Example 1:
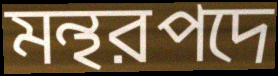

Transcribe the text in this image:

মন্থরপদে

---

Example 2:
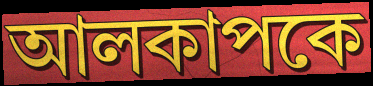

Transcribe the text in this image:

আলকাপকে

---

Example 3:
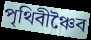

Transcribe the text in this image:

পৃথিবীঞ্চৈব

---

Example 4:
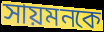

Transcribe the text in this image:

সায়মনকে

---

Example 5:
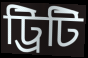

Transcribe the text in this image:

ট্রিটি